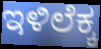
ಇಳಿಲೆಕ್ಕ